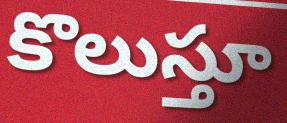
కొలుస్తూ